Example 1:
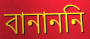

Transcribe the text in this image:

বানাননি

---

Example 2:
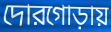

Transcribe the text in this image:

দোরগোড়ায়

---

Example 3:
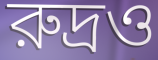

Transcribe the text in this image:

রুদ্রও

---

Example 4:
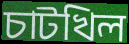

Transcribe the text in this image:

চাটখিল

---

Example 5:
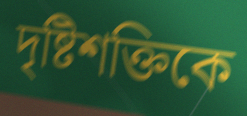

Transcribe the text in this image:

দৃষ্টিশক্তিকে